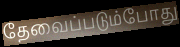
தேவைப்படும்போது